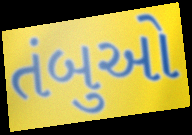
તંબુઓ